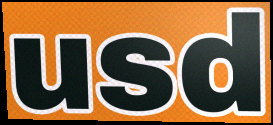
usd